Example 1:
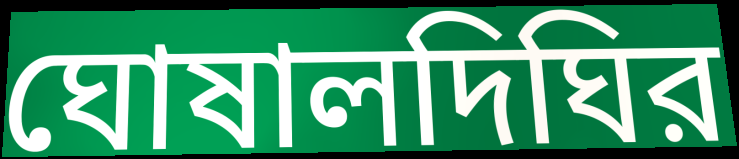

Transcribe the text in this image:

ঘোষালদিঘির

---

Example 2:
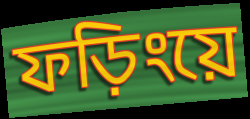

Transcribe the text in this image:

ফড়িংয়ে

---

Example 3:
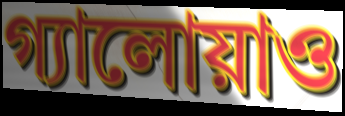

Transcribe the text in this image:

গ্যালোয়াও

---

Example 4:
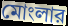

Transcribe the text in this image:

মোংলার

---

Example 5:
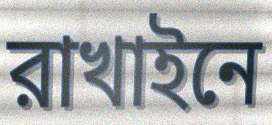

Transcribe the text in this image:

রাখাইনে